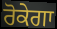
ਰੋਕੇਗਾ